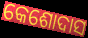
କେଶୋଦାସ